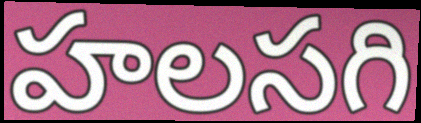
హలసగి